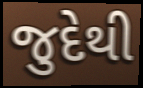
જુદેથી